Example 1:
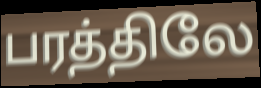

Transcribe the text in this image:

பரத்திலே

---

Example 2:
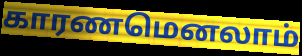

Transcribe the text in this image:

காரணமெனலாம்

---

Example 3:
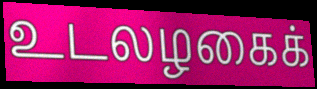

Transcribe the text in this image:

உடலழகைக்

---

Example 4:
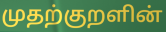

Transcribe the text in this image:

முதற்குறளின்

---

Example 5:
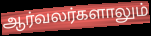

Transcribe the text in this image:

ஆர்வலர்களாலும்